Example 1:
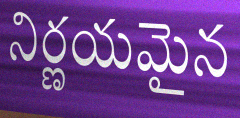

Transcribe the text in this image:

నిర్ణయమైన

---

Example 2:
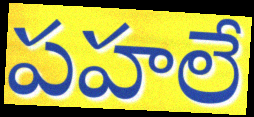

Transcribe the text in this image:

పహలే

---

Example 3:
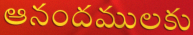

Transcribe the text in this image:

ఆనందములకు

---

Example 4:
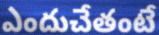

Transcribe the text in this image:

ఎందుచేతంటే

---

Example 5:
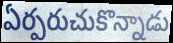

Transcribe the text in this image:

ఏర్పరుచుకొన్నాడు